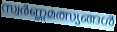
സ്വർണ്ണമത്സ്യങ്ങൾ